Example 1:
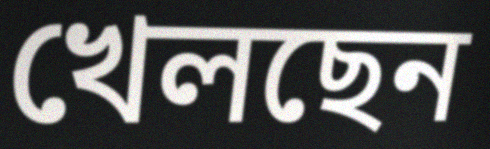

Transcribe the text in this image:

খেলছেন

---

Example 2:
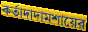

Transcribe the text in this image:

কর্তাদাদামশায়ের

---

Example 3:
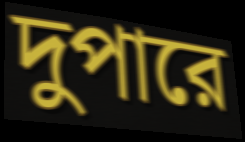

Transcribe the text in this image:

দুপারে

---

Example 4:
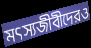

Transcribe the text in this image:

মৎস্যজীবীদেরও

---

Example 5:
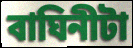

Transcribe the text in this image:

বাঘিনীটা